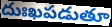
దుఃఖపడుతూ